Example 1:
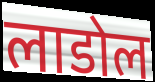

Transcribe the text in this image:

लाडोल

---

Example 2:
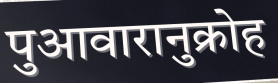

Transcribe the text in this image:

पुआवारानुक्रोह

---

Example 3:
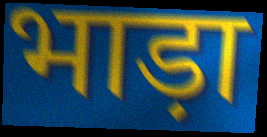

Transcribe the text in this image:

भाड़ा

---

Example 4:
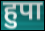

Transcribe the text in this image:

हुपा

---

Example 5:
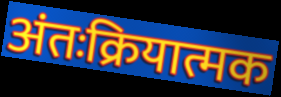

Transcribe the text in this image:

अंतःक्रियात्मक